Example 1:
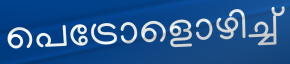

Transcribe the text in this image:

പെട്രോളൊഴിച്ച്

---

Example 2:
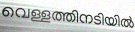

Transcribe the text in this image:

വെള്ളത്തിനടിയിൽ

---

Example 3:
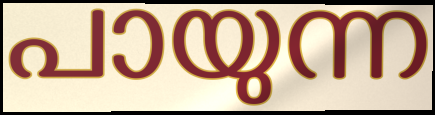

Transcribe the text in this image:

പായുന്ന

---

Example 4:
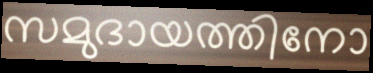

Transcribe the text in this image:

സമുദായത്തിനോ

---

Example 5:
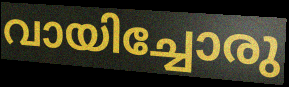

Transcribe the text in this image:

വായിച്ചോരു